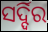
ସର୍ଦ୍ଦିର